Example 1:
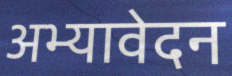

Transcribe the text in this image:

अभ्यावेदन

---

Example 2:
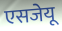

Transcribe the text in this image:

एसजेयू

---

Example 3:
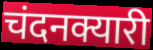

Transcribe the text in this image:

चंदनक्यारी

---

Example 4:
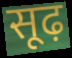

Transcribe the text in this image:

सूढ़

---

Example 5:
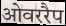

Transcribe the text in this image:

ओवररैप